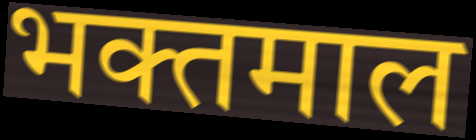
भक्तमाल